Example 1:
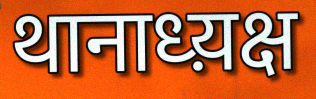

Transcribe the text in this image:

थानाध्य़क्ष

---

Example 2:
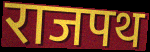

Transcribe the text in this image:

राजपथ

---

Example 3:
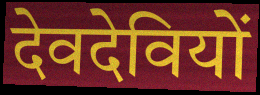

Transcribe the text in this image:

देवदेवियों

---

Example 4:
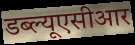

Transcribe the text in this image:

डब्ल्यूएसीआर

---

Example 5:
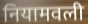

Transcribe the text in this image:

नियामवली